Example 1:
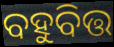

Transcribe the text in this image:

ବହୁବିତ୍ତ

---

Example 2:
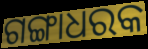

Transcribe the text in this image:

ଗଙ୍ଗାଧରକ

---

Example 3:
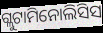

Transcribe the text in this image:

ଗ୍ଲୁଟାମିନୋଲିସିସ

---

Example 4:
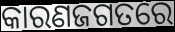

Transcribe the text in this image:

କାରଣଜଗତରେ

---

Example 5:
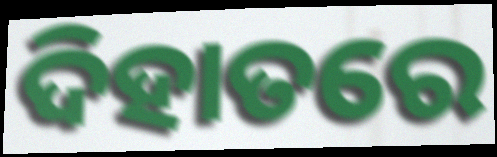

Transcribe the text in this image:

ଦିହାତରେ